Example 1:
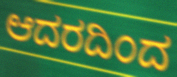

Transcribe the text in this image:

ಆದರದಿಂದ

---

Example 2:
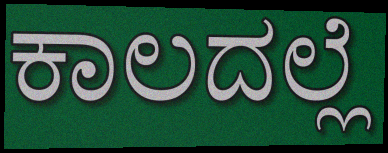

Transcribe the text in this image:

ಕಾಲದಲ್ಲೆ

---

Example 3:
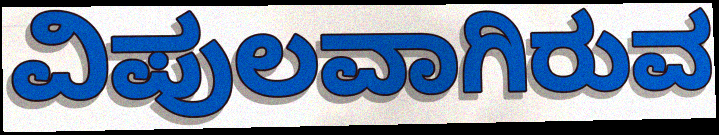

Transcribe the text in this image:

ವಿಪುಲವಾಗಿರುವ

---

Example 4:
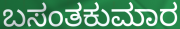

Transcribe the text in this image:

ಬಸಂತಕುಮಾರ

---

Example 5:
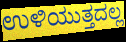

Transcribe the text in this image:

ಉಳಿಯುತ್ತದಲ್ಲ